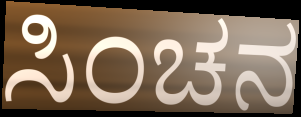
ಸಿಂಚನ